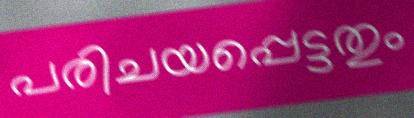
പരിചയപ്പെട്ടതും